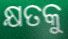
କ୍ଷତକୁ